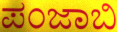
ಪಂಜಾಬಿ